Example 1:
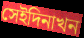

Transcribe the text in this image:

সেইদিনাখন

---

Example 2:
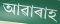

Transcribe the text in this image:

আৱাৰাহ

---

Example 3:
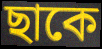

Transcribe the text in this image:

ছাকে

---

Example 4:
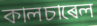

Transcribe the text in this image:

কালচাৰেল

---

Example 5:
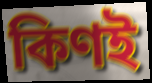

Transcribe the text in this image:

কিণই